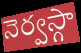
నెర్వస్గా